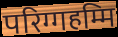
परिग्गहम्मि